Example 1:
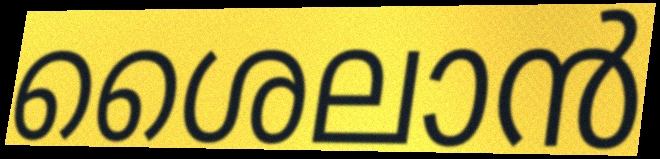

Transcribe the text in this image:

ശൈലാൻ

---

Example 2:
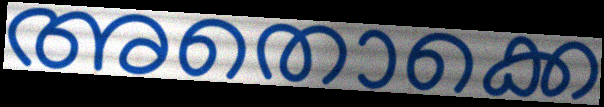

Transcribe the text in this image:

അതൊക്കെ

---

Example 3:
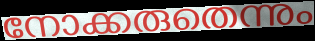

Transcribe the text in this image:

നോക്കരുതെന്നും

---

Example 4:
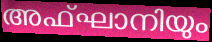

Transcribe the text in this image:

അഫ്ഘാനിയും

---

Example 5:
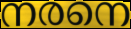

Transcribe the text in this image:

നരനെ